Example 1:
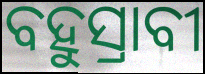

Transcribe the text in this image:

ବହୁସ୍ରାବୀ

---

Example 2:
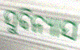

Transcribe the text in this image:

ସୁବିନ୍ୟାସ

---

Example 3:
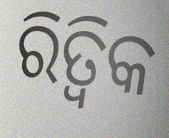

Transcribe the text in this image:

ରିତ୍ୱିକ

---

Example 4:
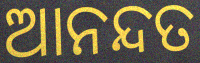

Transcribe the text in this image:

ଆନନ୍ଦତ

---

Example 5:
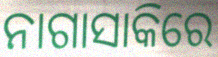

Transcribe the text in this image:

ନାଗାସାକିରେ